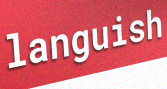
languish